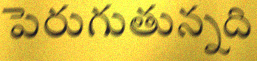
పెరుగుతున్నది